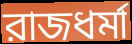
রাজধর্মা